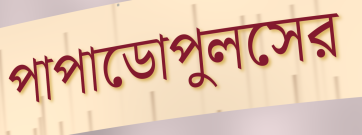
পাপাডোপুলসের